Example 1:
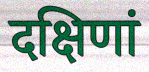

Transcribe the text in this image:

दक्षिणां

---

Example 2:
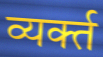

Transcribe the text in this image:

व्यर्क्त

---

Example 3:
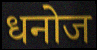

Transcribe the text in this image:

धनोज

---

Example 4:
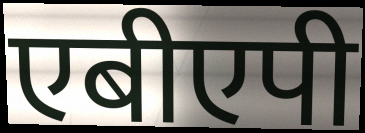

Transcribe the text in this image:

एबीएपी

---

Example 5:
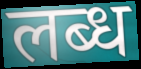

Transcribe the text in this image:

लब्ध